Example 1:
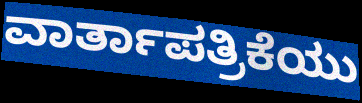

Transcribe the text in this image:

ವಾರ್ತಾಪತ್ರಿಕೆಯು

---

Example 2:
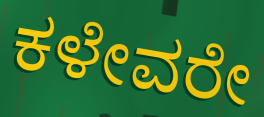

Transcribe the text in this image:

ಕಳೇವರೇ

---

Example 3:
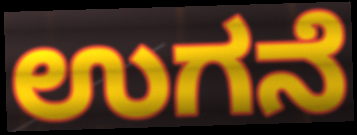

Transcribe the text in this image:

ಉಗನೆ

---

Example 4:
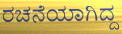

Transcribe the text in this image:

ರಚನೆಯಾಗಿದ್ದ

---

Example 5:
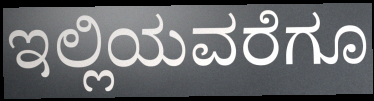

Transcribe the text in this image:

ಇಲ್ಲಿಯವರೆಗೂ